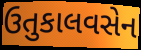
ઉતુકાલવસેન